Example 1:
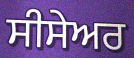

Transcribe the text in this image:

ਸੀਸੇਅਰ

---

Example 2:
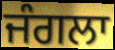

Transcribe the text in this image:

ਜੰਗਲਾ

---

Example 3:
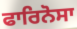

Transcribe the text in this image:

ਫਾਰਿਨੋਸਾ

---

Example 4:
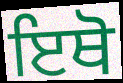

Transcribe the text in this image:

ਇਥੋ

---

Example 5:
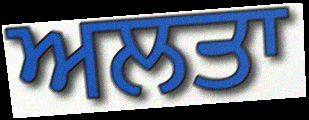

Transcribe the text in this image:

ਅਲਤਾ